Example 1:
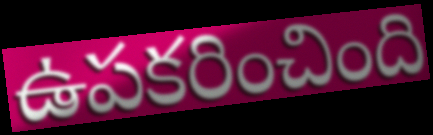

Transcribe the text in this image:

ఉపకరించింది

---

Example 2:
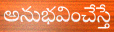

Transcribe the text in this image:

అనుభవించేస్తే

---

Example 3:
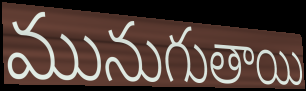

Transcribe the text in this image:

మునుగుతాయి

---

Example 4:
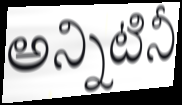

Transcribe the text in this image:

అన్నిటినీ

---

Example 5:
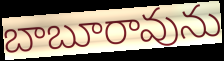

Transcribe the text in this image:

బాబూరావును